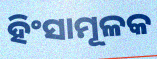
ହିଂସାମୂଳକ